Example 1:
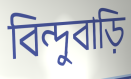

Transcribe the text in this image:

বিন্দুবাড়ি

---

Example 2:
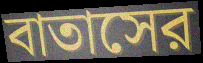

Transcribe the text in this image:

বাতাসের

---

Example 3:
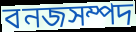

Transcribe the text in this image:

বনজসম্পদ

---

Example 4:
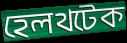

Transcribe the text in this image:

হেলথটেক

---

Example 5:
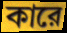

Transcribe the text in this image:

কারে